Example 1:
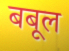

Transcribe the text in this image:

बबूल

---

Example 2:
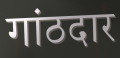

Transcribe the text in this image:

गांठदार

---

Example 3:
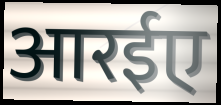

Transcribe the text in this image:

आरईए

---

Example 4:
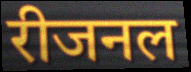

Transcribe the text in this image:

रीजनल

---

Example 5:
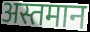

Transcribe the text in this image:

अस्तमान